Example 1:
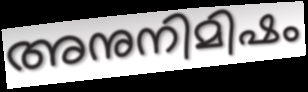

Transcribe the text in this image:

അനുനിമിഷം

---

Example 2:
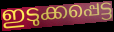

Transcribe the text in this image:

ഇടുക്കപ്പെട്ട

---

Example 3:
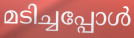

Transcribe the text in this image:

മടിച്ചപ്പോൾ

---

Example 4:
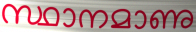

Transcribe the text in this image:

സ്ഥാനമാണു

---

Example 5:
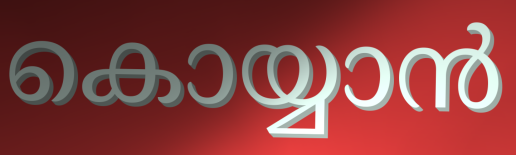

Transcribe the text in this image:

കൊയ്യാൻ